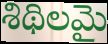
శిథిలమై